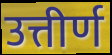
उत्तीर्ण